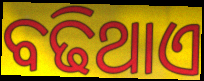
ବଢିଥାଏ